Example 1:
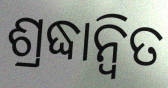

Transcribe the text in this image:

ଶ୍ରଦ୍ଧାନ୍ୱିତ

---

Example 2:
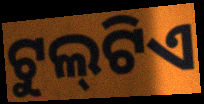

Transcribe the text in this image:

ଟୁଲ୍‍ଟିଏ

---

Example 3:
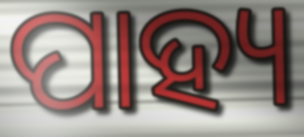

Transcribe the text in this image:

ପାହ୍ୟ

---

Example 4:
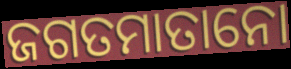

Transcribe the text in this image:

ଜଗତମାତାନୋ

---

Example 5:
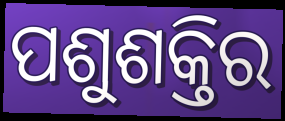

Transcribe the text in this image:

ପଶୁଶକ୍ତିର